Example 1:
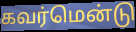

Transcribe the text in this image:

கவர்மென்டு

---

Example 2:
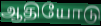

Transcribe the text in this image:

ஆதியோடு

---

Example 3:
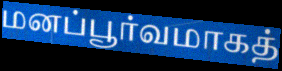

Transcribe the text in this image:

மனப்பூர்வமாகத்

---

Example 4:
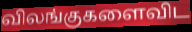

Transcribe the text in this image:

விலங்குகளைவிட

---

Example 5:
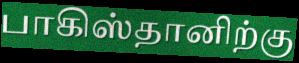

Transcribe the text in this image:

பாகிஸ்தானிற்கு